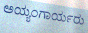
ಅಯ್ಯಂಗಾರ್ಯರು